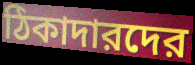
ঠিকাদারদের